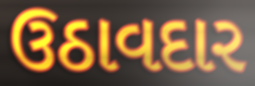
ઉઠાવદાર